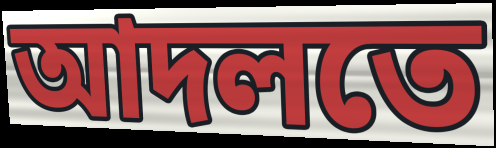
আদলতে